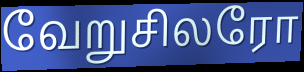
வேறுசிலரோ